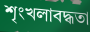
শৃংখলাবদ্ধতা